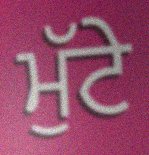
ਮੁੱਟੇ